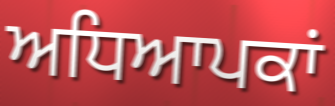
ਅਧਿਆਪਕਾਂ